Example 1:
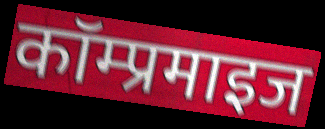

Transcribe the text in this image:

कॉम्प्रमाइज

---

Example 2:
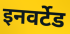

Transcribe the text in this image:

इनवर्टेड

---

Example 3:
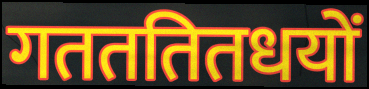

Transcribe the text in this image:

गतततितधयों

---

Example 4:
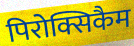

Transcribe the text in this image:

पिरोक्सिकैम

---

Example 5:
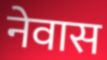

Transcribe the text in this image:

नेवास